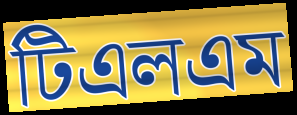
টিএলএম